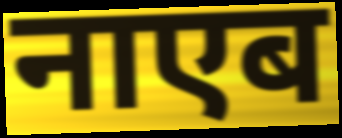
नाएब